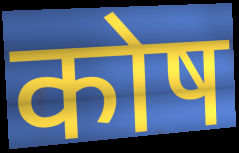
कोष